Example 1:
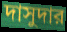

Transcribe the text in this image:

দাসুদার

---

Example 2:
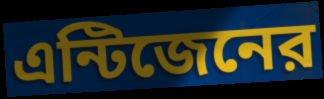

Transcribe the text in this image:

এন্টিজেনের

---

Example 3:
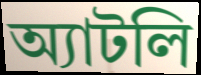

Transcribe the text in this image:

অ্যাটলি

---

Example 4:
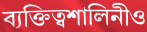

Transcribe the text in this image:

ব্যক্তিত্বশালিনীও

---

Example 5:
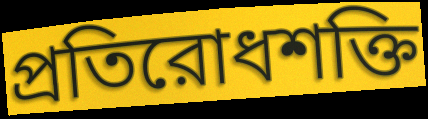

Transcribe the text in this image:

প্রতিরোধশক্তি